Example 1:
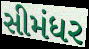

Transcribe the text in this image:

સીમંધર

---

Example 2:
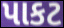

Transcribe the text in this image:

પાકટ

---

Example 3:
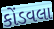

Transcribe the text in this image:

કોંડવલા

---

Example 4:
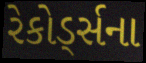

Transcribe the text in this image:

રેકોર્ડ્સના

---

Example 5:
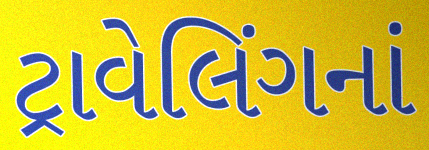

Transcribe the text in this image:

ટ્રાવેલિંગનાં